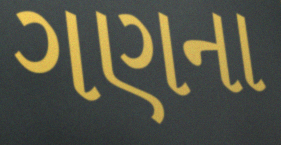
ગણના